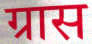
ग्रास